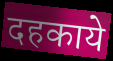
दहकाये